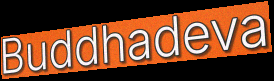
Buddhadeva